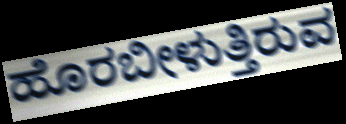
ಹೊರಬೀಳುತ್ತಿರುವ